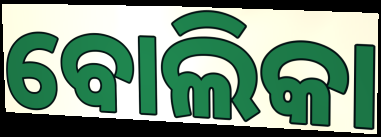
ବୋଲିକା